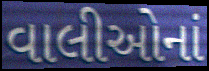
વાલીઓનાં